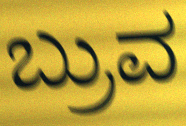
ಬ್ರುವ